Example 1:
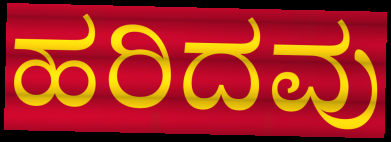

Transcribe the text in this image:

ಹರಿದವು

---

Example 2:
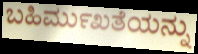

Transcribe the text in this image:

ಬಹಿರ್ಮುಖತೆಯನ್ನು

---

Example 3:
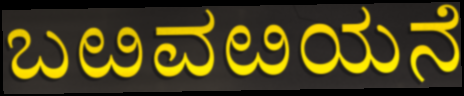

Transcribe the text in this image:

ಬೞವೞಯನೆ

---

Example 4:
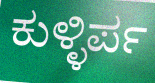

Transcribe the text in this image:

ಕುಳ್ಳಿರ್ಪ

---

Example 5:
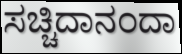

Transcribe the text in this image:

ಸಚ್ಚಿದಾನಂದಾ